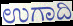
ಉಗಾದಿ